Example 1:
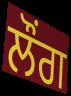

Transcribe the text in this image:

ਲੌਂਗ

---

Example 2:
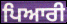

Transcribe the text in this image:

ਪਿਆਰੀ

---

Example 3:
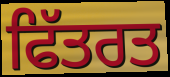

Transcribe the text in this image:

ਫਿੱਤਰਤ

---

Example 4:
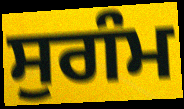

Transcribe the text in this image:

ਸੁਗੰਮ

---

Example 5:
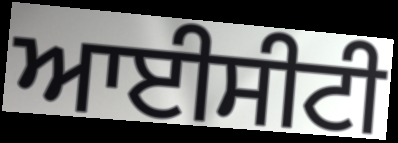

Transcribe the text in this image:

ਆਈਸੀਟੀ